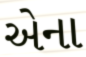
એના